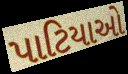
પાટિયાઓ